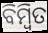
ବିମ୍ବିତ